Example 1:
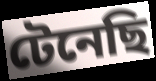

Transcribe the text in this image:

টেনেছি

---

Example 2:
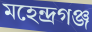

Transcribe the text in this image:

মহেন্দ্রগঞ্জ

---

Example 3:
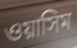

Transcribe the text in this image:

ওয়াসিম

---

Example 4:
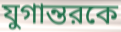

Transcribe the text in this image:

যুগান্তরকে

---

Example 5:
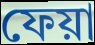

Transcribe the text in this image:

ফেয়া